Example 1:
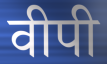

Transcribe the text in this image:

वीपी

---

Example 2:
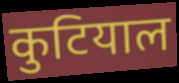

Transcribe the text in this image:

कुटियाल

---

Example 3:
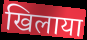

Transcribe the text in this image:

खिलाया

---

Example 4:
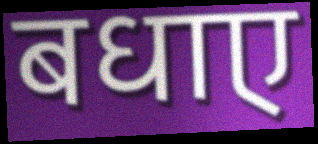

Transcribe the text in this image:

बधाए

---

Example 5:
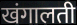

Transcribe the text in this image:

खंगालती